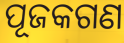
ପୂଜକଗଣ